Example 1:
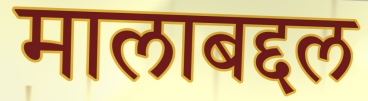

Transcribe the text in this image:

मालाबद्दल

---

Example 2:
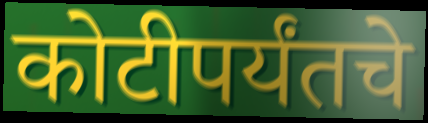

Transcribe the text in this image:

कोटीपर्यंतचे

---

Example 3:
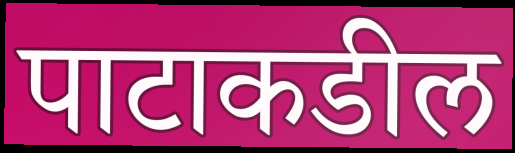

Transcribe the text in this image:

पाटाकडील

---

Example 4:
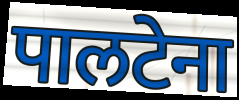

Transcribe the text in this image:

पालटेना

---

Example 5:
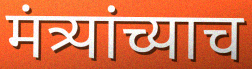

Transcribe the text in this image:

मंत्र्यांच्याच